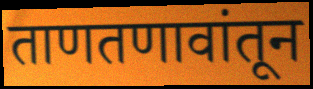
ताणतणावांतून